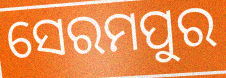
ସେରମପୁର